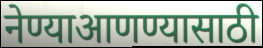
नेण्याआणण्यासाठी